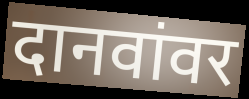
दानवांवर